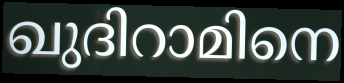
ഖുദിറാമിനെ